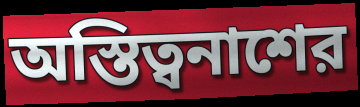
অস্তিত্বনাশের